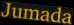
Jumada